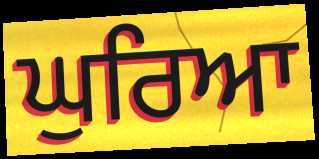
ਘੁਰਿਆ